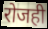
रोजही